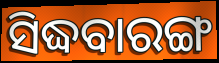
ସିଦ୍ଧବାରଙ୍ଗ